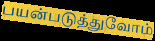
பயன்படுத்துவோம்